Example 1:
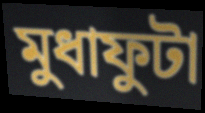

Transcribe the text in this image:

মুধাফুটা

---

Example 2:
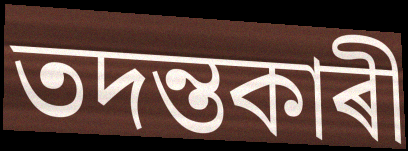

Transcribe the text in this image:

তদন্তকাৰী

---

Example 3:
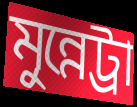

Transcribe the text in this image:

মুন্নেট্ৰা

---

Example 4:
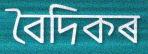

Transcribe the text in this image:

বৈদিকৰ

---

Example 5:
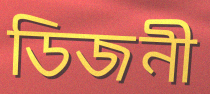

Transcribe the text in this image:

ডিজনী